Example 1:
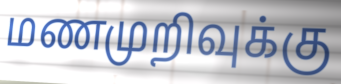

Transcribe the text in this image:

மணமுறிவுக்கு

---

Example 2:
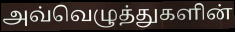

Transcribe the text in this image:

அவ்வெழுத்துகளின்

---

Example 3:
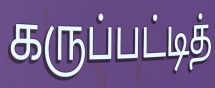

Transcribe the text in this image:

கருப்பட்டித்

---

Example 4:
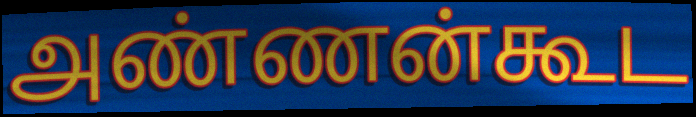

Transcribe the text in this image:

அண்ணன்கூட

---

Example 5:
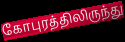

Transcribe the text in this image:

கோபுரத்திலிருந்து